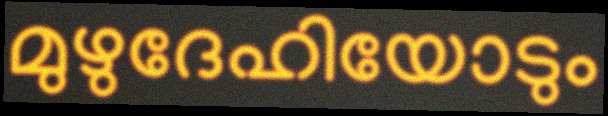
മുഴുദേഹിയോടും